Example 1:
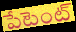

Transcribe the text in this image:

పేటెంట్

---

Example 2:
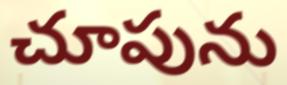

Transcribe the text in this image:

చూపును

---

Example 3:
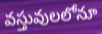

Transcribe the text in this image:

వస్తువులలోనూ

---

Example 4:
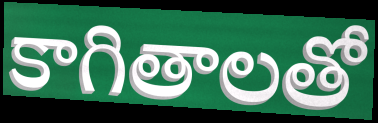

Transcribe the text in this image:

కాగితాలతో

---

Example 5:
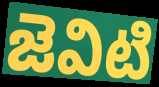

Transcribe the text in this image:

జెవిటి